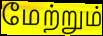
மேற்றும்